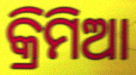
କ୍ରିମିଆ